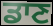
ਡਾਣ